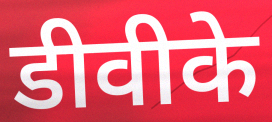
डीवीके